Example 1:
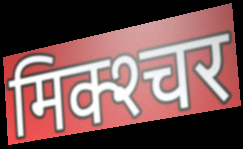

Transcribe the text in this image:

मिक्श्चर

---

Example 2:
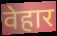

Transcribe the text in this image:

वेहार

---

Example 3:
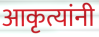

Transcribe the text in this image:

आकृत्यांनी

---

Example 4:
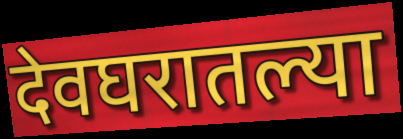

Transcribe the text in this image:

देवघरातल्या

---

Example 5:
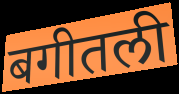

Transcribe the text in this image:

बगीतली